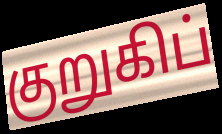
குறுகிப்